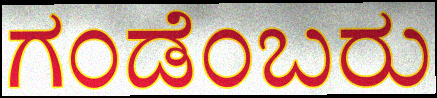
ಗಂಡೆಂಬರು